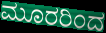
ಮೂರರಿಂದ